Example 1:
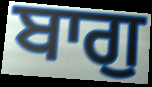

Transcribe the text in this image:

ਬਾਗੁ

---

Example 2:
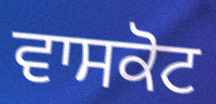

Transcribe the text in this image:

ਵਾਸਕੋਟ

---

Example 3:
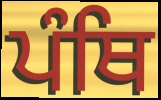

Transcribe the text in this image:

ਪੰਥਿ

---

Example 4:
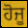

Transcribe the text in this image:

ਹੋਜੂ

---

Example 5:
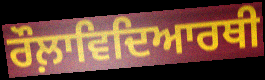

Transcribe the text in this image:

ਰੌਲ਼ਾਵਿਦਿਆਰਥੀ